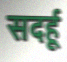
सदर्हू